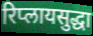
रिप्लायसुद्धा